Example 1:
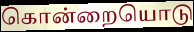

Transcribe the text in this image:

கொன்றையொடு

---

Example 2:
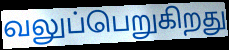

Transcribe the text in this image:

வலுப்பெறுகிறது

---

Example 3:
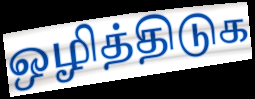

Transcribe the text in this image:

ஒழித்திடுக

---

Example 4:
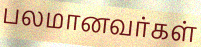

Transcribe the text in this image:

பலமானவர்கள்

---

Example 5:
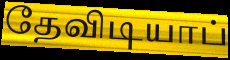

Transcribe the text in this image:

தேவிடியாப்